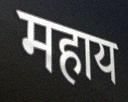
महाय